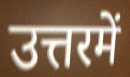
उत्तरमें